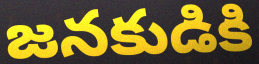
జనకుడికి